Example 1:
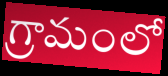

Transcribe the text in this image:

గ్రామంలో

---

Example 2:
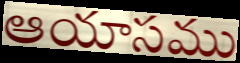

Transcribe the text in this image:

ఆయాసము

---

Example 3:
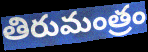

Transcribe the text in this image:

తిరుమంత్రం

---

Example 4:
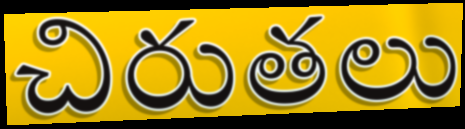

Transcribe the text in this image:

చిరుతలు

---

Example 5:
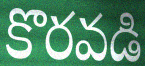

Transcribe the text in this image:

కొరవడి